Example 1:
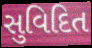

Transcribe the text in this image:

સુવિદિત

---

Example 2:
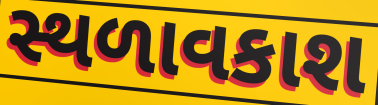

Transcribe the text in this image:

સ્થળાવકાશ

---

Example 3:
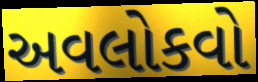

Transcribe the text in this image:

અવલોકવો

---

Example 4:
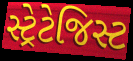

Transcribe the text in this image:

સ્ટ્રેટેજિસ્ટ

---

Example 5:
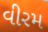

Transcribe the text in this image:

વીરમ